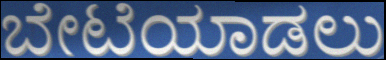
ಬೇಟೆಯಾಡಲು